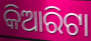
କିଆରିଟା